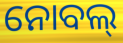
ନୋବଲ୍